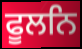
ਫੂਲਨਿ